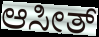
ಆಸೀತ್